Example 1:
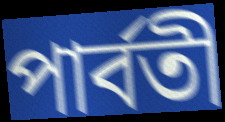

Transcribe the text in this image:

পার্বতী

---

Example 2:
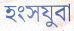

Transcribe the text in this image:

হংসযুবা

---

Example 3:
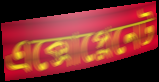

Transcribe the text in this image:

এক্সোপ্লেনেট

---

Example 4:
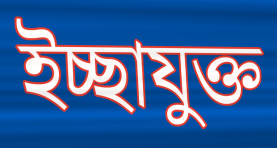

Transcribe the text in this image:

ইচ্ছাযুক্ত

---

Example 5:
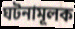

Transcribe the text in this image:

ঘটনামূলক